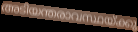
അടിയന്തരാവസ്ഥയ്ക്കു